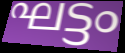
ഘട്ടം